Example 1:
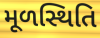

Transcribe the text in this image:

મૂળસ્થિતિ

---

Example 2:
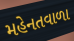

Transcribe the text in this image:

મહેનતવાળા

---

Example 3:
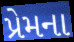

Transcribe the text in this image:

પ્રેમના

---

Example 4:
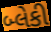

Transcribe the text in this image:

બ્લેકી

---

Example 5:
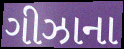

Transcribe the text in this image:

ગીઝાના